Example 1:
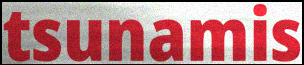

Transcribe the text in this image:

tsunamis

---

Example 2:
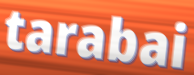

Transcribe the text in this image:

tarabai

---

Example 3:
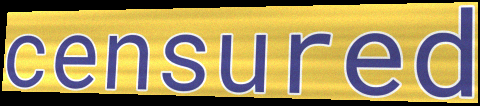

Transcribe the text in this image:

censured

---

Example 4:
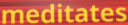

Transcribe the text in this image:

meditates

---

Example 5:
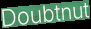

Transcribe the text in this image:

Doubtnut